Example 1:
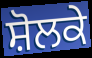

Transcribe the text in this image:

ਸ਼ੋਲਕੇ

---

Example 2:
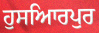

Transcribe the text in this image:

ਹੁਸਆਿਰਪੁਰ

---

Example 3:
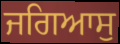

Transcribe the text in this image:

ਜਗਿਆਸੁ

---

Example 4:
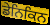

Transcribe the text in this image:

ਡੇਨਿਕਿਨ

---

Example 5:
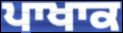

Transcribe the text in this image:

ਪਾਖਾਕ